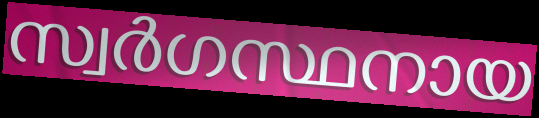
സ്വർഗസ്ഥനായ